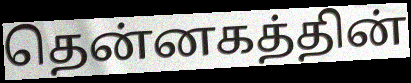
தென்னகத்தின்